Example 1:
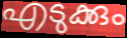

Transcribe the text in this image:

എടുക്കും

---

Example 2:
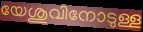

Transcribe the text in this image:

യേശുവിനോടുള്ള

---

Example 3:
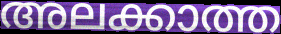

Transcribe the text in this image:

അലക്കാത്ത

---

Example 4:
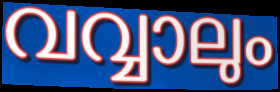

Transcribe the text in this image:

വവ്വാലും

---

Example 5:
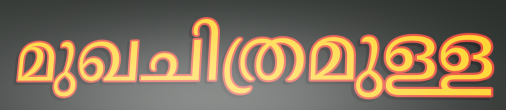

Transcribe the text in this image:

മുഖചിത്രമുള്ള